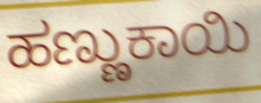
ಹಣ್ಣುಕಾಯಿ